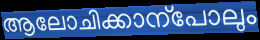
ആലോചിക്കാന്പോലും